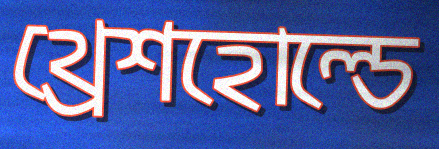
থ্রেশহোল্ডে